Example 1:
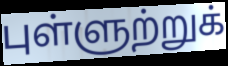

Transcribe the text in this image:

புள்ளுற்றுக்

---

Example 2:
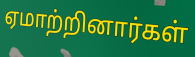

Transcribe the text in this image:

ஏமாற்றினார்கள்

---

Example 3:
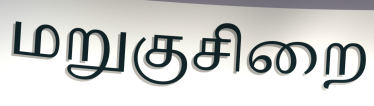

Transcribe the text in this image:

மறுகுசிறை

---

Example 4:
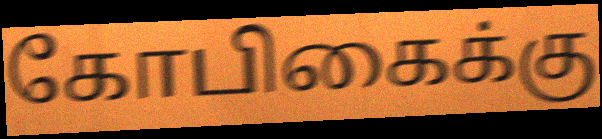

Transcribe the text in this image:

கோபிகைக்கு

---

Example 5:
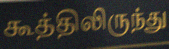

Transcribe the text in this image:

கூத்திலிருந்து